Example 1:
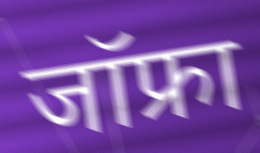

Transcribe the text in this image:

जॉफ्रा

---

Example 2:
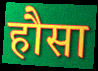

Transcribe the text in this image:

हौसा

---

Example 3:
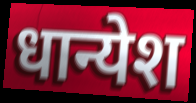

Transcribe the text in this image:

धान्येश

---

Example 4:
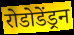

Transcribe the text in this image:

रोडोडेंड्रन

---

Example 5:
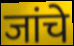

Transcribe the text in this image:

जांचे